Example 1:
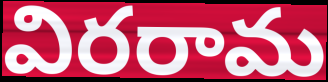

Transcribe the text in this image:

విరరామ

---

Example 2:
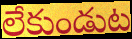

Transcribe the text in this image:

లేకుండుట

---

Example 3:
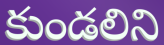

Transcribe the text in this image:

కుండలిని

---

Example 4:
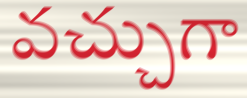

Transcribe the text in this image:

వచ్చుగా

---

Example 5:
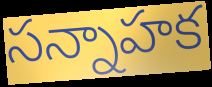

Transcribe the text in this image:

సన్నాహక